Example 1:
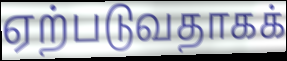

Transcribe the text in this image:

ஏற்படுவதாகக்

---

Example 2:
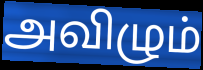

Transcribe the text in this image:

அவிழும்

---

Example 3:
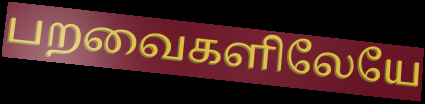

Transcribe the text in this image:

பறவைகளிலேயே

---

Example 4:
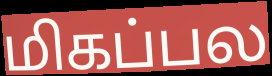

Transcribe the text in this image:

மிகப்பல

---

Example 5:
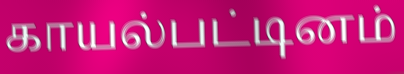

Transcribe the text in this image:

காயல்பட்டினம்